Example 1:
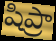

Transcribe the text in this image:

షిప్రా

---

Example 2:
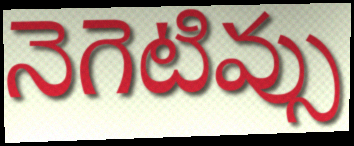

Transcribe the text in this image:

నెగెటివ్సు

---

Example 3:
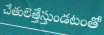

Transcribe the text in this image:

చేతులెత్తేస్తుండటంతో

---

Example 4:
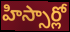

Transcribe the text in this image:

హిస్సార్లో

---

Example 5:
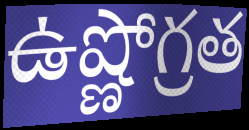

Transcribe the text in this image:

ఉష్ణోగ్రత